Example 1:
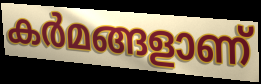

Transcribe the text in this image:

കർമങ്ങളാണ്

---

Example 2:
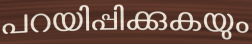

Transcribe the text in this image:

പറയിപ്പിക്കുകയും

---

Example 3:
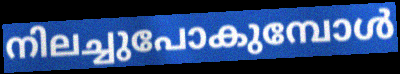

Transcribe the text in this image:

നിലച്ചുപോകുമ്പോൾ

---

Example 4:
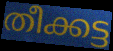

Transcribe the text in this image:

തീക്കട്ട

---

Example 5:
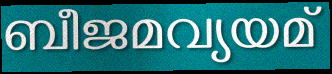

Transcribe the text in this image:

ബീജമവ്യയമ്